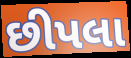
છીપલા